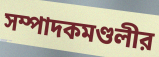
সম্পাদকমণ্ডলীর